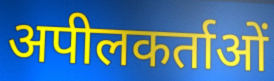
अपीलकर्ताओं